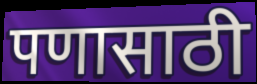
पणासाठी